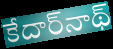
కేదార్‌నాథ్